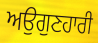
ਅਉਗੁਣਹਾਰੀ